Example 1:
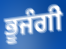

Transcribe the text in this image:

ਭੂਜੰਗੀ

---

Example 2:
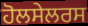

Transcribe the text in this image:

ਹੋਲਸੇਲਰਸ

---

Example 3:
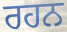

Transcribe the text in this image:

ਰਹਨ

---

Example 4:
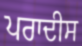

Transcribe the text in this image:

ਪਰਾਦੀਸ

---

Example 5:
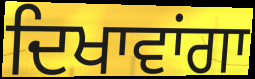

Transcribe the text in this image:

ਦਿਖਾਵਾਂਗਾ